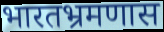
भारतभ्रमणास